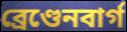
ব্ৰেণ্ডেনবাৰ্গ